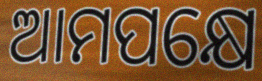
ଆମପକ୍ଷେ